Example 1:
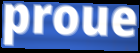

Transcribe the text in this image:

proue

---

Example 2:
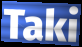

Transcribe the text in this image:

Taki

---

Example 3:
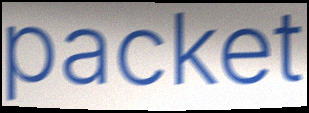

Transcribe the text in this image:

packet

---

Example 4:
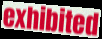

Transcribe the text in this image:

exhibited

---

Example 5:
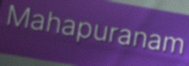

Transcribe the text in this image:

Mahapuranam